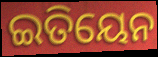
ଇତିୟେନ